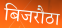
बिजरौठा